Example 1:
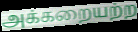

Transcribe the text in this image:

அக்கறையற்ற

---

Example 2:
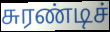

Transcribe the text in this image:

சுரண்டிச்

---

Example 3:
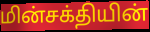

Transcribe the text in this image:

மின்சக்தியின்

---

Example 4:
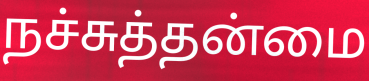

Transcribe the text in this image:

நச்சுத்தன்மை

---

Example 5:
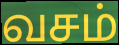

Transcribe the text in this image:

வசம்